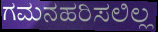
ಗಮನಹರಿಸಲಿಲ್ಲ